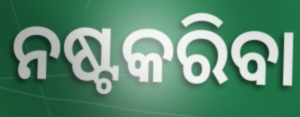
ନଷ୍ଟକରିବା